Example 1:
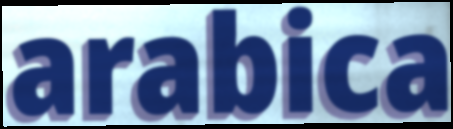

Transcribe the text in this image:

arabica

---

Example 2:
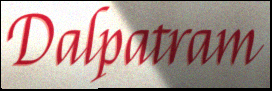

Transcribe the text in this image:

Dalpatram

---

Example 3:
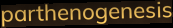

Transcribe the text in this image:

parthenogenesis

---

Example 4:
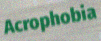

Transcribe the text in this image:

Acrophobia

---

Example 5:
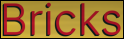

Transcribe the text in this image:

Bricks